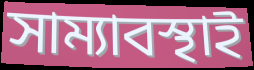
সাম্যাবস্থাই